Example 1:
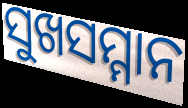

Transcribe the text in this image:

ସୁଖସମ୍ମାନ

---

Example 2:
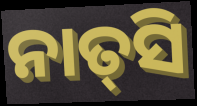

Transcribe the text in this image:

ନାତ୍‌ସି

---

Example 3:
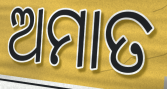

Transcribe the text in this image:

ଅମାତ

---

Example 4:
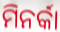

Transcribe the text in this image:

ମିନର୍କା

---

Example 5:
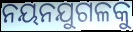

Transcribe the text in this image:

ନୟନଯୁଗଳକୁ